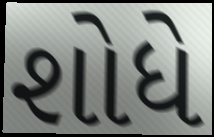
શોધે